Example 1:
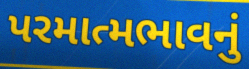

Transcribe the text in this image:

પરમાત્મભાવનું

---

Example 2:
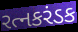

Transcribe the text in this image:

રત્નકરંડક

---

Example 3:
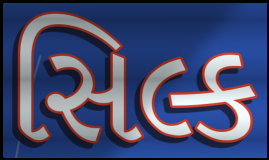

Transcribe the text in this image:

સિલ્ક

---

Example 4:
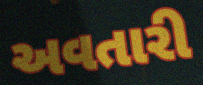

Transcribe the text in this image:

અવતારી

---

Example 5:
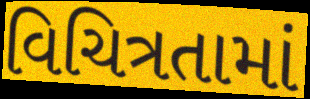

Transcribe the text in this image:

વિચિત્રતામાં